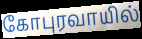
கோபுரவாயில்